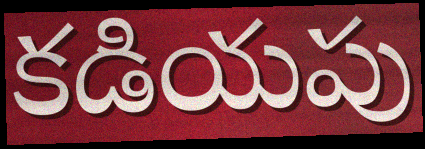
కడియపు